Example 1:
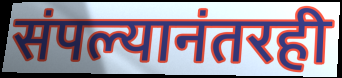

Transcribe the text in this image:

संपल्यानंतरही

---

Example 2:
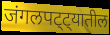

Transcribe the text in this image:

जंगलपट्ट्यातील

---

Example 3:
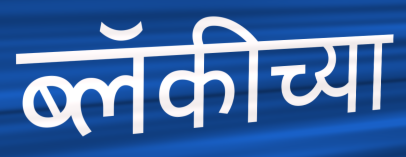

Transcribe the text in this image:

ब्लॅकीच्या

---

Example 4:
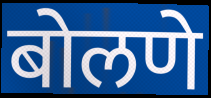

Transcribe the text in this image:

बोलणे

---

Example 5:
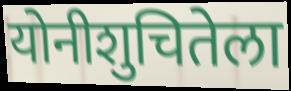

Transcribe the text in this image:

योनीशुचितेला